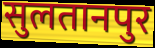
सुलतानपुर